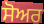
ਸੋਅਰ